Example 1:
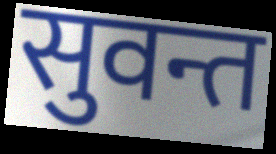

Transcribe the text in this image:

सुवन्त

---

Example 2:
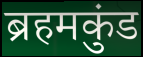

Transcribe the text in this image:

ब्रहमकुंड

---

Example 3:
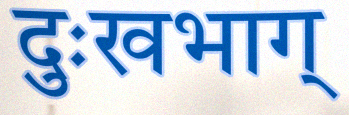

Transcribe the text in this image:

दुःखभाग्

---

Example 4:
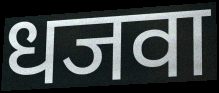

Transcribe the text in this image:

धजवा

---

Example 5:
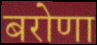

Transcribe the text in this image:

बरोणा